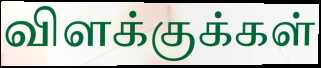
விளக்குக்கள்